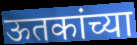
ऊतकांच्या